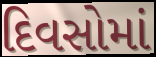
દિવસોમાં